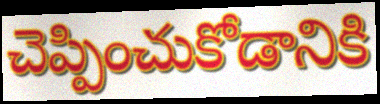
చెప్పించుకోడానికి